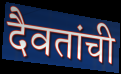
दैवतांची